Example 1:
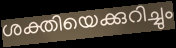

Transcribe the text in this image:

ശക്തിയെക്കുറിച്ചും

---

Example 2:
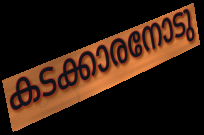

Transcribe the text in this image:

കടക്കാരനോടു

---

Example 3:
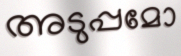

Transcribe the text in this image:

അടുപ്പമോ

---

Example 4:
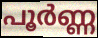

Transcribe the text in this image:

പൂർണ്ണ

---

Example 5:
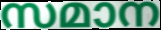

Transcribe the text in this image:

സമാന